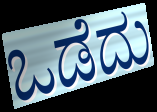
ಒಡೆದು